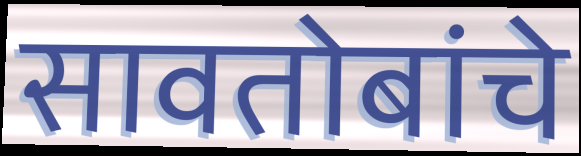
सावतोबांचे